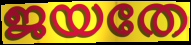
ജയതേ